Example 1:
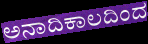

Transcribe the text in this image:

ಅನಾದಿಕಾಲದಿಂದ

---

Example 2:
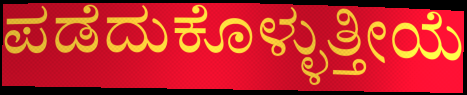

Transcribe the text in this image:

ಪಡೆದುಕೊಳ್ಳುತ್ತೀಯೆ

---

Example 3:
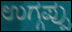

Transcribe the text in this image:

ಉಗ್ಗಪ್ಪು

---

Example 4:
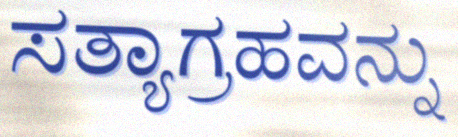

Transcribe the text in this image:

ಸತ್ಯಾಗ್ರಹವನ್ನು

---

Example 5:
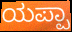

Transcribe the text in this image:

ಯಪ್ಪಾ